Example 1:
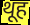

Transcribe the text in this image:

थूह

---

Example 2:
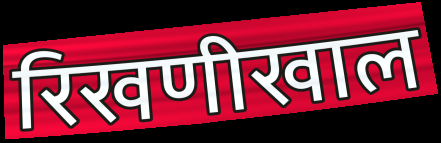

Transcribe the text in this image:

रिखणीखाल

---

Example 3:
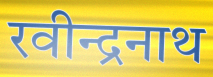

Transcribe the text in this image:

रवीन्‍द्रनाथ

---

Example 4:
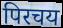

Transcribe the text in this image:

पिरचय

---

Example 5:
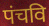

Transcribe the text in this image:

पंचवि